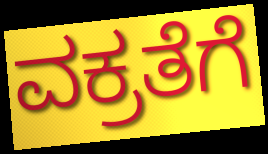
ವಕ್ರತೆಗೆ